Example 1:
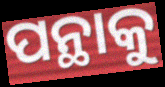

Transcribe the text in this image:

ପନ୍ଥାକୁ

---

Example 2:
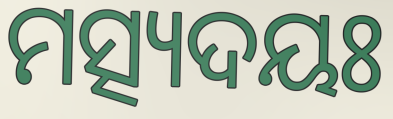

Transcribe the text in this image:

ମତ୍ସ୍ୟଦୟଃ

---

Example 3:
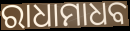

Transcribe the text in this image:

ରାଧାମାଧବ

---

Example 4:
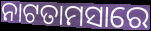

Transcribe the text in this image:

ନାଟତାମସାରେ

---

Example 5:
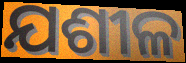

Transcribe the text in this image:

ଯଶୀଳ